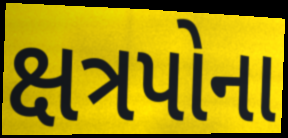
ક્ષત્રપોના